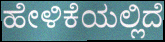
ಹೇಳಿಕೆಯಲ್ಲಿದೆ